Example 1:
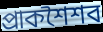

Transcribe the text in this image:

প্রাকশৈশব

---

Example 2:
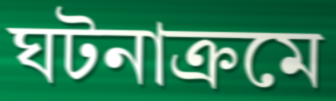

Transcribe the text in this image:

ঘটনাক্রমে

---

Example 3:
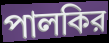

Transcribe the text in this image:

পালকির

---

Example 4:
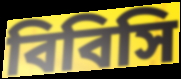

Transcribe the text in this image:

বিবিসি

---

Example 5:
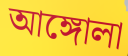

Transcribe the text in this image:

আঙ্গোলা